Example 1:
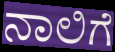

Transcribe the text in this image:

ನಾಲಿಗೆ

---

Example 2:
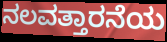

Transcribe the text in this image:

ನಲವತ್ತಾರನೆಯ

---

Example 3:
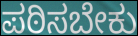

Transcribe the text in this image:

ಪಠಿಸಬೇಕು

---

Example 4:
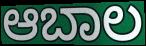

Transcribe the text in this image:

ಆಬಾಲ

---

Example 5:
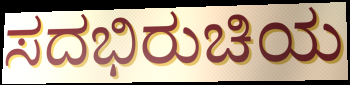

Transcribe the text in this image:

ಸದಭಿರುಚಿಯ